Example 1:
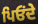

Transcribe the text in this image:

ਪਿਓਂਦੇ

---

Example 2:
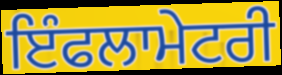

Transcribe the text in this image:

ਇੰਫਲਾਮੇਟਰੀ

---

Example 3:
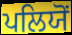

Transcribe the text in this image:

ਪਲਿਯੋਂ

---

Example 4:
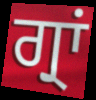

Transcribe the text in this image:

ਗ੍ਰਾਂ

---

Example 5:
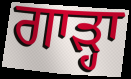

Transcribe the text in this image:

ਗਾੜ੍ਹਾ